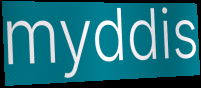
myddis